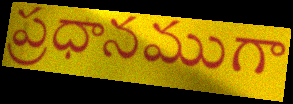
ప్రధానముగా